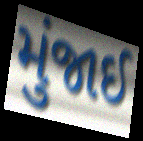
મુંજાઈ